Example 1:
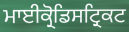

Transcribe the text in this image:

ਮਾਈਕ੍ਰੋਡਿਸਟ੍ਰਿਕਟ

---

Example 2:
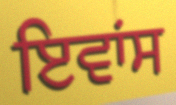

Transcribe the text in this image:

ਇਵਾਂਸ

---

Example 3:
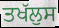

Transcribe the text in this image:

ਤਖੱਲੁਸ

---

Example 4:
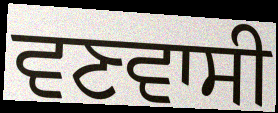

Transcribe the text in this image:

ਵਣਵਾਸੀ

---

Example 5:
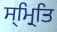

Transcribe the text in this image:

ਸ੍ਮ੍ਰਿਤਿ